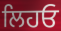
ਲਿਹਓ